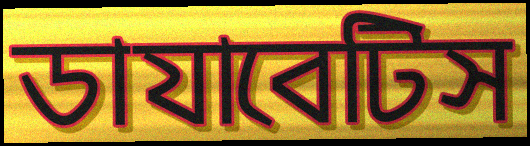
ডাযাবেটিস